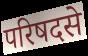
परिषदसे